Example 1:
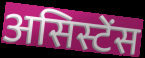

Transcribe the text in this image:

असिस्टेंस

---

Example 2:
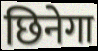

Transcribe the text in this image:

छिनेगा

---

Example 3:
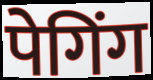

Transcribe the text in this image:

पेगिंग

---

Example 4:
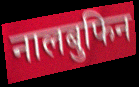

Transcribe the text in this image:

नालबुफिन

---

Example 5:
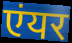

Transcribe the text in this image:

एंयर